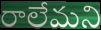
రాలేమని